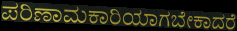
ಪರಿಣಾಮಕಾರಿಯಾಗಬೇಕಾದರೆ